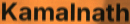
Kamalnath